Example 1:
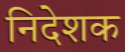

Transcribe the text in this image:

निदेशक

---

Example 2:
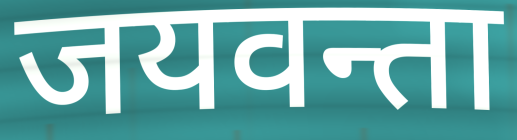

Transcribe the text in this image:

जयवन्ता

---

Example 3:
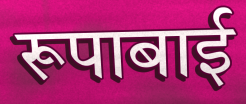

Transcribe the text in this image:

रूपाबाई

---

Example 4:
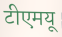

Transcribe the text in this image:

टीएमयू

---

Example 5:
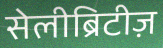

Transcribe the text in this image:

सेलीब्रिटीज़